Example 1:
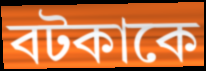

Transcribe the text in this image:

বটকাকে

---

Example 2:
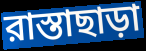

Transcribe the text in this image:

রাস্তাছাড়া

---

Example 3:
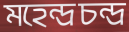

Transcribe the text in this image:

মহেন্দ্রচন্দ্র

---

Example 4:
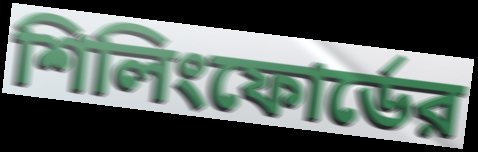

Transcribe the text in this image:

শিলিংফোর্ডের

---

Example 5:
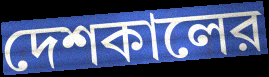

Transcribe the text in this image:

দেশকালের